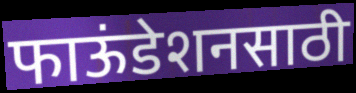
फाऊंडेशनसाठी